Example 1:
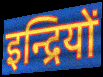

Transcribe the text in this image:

इन्द्रियों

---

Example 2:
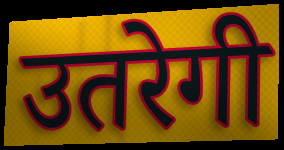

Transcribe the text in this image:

उतरेगी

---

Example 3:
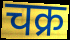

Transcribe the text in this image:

चक्र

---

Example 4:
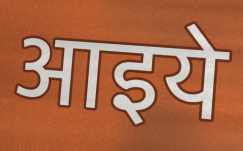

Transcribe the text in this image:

आइये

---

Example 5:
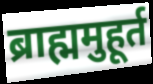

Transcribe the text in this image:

ब्राह्ममुहूर्त